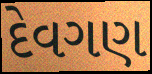
દેવગણ